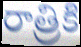
రాత్రికి